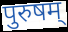
पुरुषम्